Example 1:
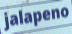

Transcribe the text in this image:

jalapeno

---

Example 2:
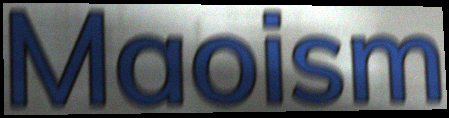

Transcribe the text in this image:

Maoism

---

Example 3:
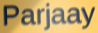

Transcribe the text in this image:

Parjaay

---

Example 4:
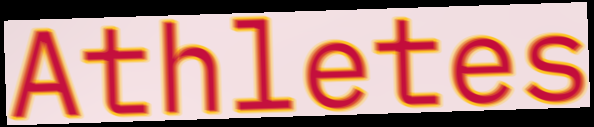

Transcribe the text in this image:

Athletes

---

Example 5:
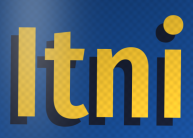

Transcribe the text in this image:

Itni